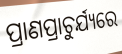
ପ୍ରାଣପ୍ରାଚୁର୍ଯ୍ୟରେ